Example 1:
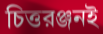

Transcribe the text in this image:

চিত্তরঞ্জনই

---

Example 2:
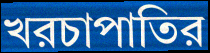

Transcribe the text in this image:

খরচাপাতির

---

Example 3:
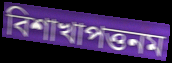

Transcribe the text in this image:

বিশাখাপত্তনম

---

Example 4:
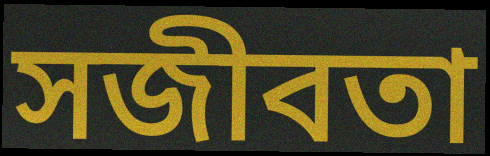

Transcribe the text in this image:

সজীবতা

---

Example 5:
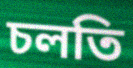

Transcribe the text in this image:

চলতি